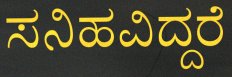
ಸನಿಹವಿದ್ದರೆ